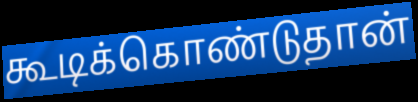
கூடிக்கொண்டுதான்